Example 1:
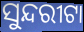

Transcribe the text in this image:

ସୁନ୍ଦରୀଟା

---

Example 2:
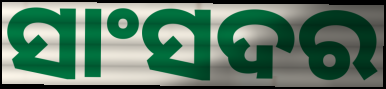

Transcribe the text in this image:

ସାଂସଦର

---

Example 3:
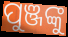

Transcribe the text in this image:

ପୁଞ୍ଜଙ୍କୁ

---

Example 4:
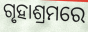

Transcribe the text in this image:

ଗୃହାଶ୍ରମରେ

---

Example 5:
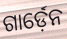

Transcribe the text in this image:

ଗାର୍ଡ଼େନ